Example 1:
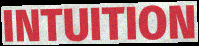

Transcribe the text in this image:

INTUITION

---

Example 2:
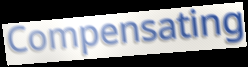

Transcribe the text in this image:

Compensating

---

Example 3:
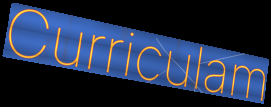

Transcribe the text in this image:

Curriculam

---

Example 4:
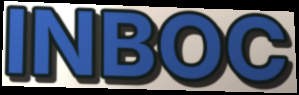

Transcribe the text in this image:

INBOC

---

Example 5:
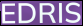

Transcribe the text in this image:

EDRIS